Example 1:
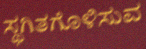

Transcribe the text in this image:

ಸ್ಥಗಿತಗೊಳಿಸುವ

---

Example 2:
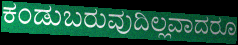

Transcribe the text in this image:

ಕಂಡುಬರುವುದಿಲ್ಲವಾದರೂ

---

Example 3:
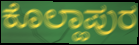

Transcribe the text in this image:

ಕೊಲ್ಹಾಪುರ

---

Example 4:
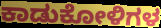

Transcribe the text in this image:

ಕಾಡುಕೋಳಿಗಳ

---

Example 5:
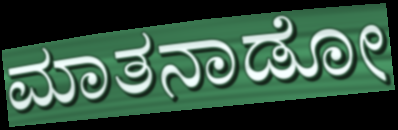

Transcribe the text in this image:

ಮಾತನಾಡೋ